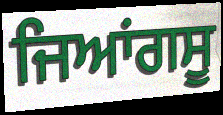
ਜਿਆਂਗਸੂ